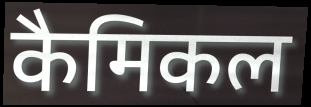
कैमिकल